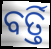
ବର୍ତ୍ତି